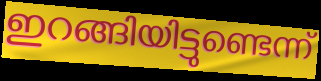
ഇറങ്ങിയിട്ടുണ്ടെന്ന്